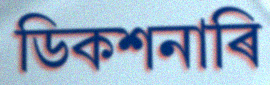
ডিকশনাৰি